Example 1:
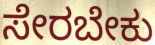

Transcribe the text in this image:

ಸೇರಬೇಕು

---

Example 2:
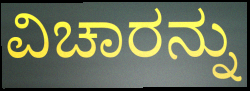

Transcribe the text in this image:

ವಿಚಾರನ್ನು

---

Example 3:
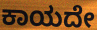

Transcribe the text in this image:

ಕಾಯದೇ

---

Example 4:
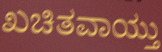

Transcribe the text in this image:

ಖಚಿತವಾಯ್ತು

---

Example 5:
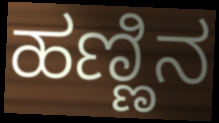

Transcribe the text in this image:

ಹಣ್ಣಿನ